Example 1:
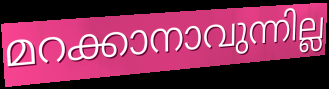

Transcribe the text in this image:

മറക്കാനാവുന്നില്ല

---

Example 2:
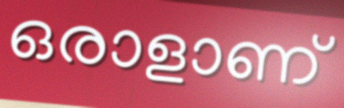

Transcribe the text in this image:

ഒരാളാണ്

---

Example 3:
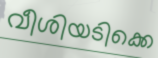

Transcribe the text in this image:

വീശിയടിക്കെ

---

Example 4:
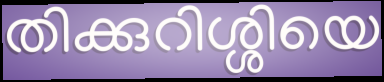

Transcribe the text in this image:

തിക്കുറിശ്ശിയെ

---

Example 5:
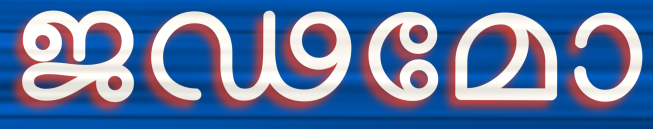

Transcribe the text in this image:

ജഢമോ